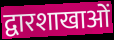
द्वारशाखाओं